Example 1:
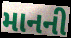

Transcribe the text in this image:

માનની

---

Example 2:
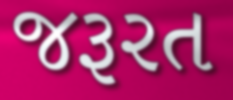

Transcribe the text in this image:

જરૂરત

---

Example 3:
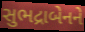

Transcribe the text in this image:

સુભદ્રાબેનને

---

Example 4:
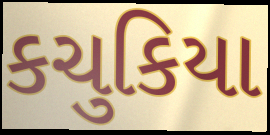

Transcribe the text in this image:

કચુકિયા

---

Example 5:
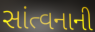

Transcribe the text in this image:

સાંત્વનાની